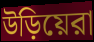
উড়িয়েরা